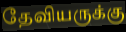
தேவியருக்கு